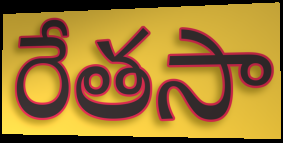
రేతసా